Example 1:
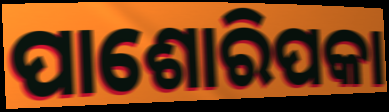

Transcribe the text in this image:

ପାଶୋରିପକା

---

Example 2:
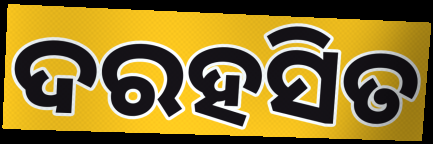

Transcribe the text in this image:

ଦରହସିତ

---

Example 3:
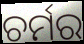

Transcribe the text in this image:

ଚର୍ମର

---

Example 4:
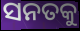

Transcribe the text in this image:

ସନତକୁ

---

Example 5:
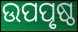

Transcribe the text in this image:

ଉପପୃଷ୍ଠ